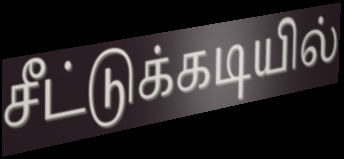
சீட்டுக்கடியில்